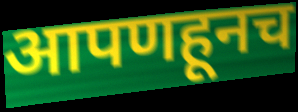
आपणहूनच